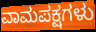
ವಾಮಪಕ್ಷಗಳು